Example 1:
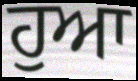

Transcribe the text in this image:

ਹੁਆ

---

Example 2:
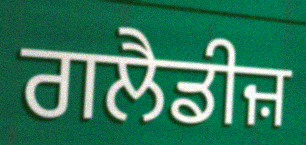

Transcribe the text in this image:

ਗਲੈਡੀਜ਼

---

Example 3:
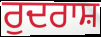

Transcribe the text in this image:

ਰੁਦਰਾਸ਼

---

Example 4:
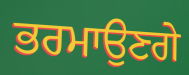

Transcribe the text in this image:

ਭਰਮਾਉਣਗੇ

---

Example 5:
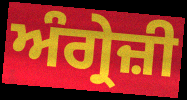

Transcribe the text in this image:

ਅੰਗ੍ਰੇਜ਼ੀ